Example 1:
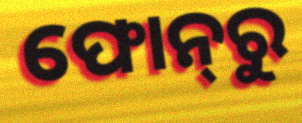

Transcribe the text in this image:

ଫୋନ୍‌ରୁ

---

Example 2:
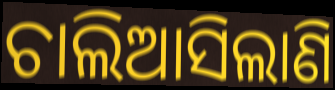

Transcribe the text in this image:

ଚାଲିଆସିଲାଣି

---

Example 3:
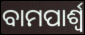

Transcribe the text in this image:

ବାମପାର୍ଶ୍ଵ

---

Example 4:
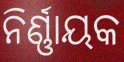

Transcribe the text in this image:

ନିର୍ଣ୍ଣାୟକ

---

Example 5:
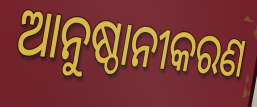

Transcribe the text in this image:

ଆନୁଷ୍ଠାନୀକରଣ